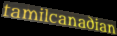
tamilcanadian